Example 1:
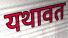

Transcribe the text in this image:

यथावत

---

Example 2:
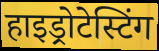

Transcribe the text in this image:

हाइड्रोटेस्टिंग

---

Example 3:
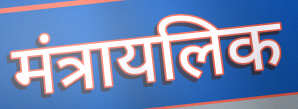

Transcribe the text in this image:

मंत्रायलिक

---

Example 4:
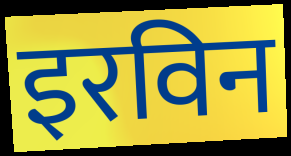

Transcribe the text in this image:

इरविन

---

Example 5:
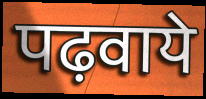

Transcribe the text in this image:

पढ़वाये